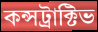
কন্সট্রাক্টিভ